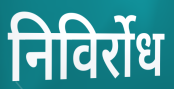
निविर्रोध